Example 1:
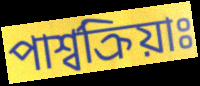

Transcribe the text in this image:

পাৰ্শ্বক্ৰিয়াঃ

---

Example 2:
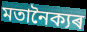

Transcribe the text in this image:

মতানৈক্যৰ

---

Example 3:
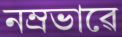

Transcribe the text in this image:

নম্ৰভাৱে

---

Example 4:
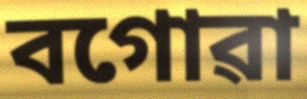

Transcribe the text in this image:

বগোৱা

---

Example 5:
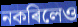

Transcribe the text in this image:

নকৰিলেও